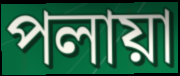
পলায়া